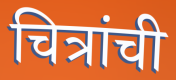
चित्रांची